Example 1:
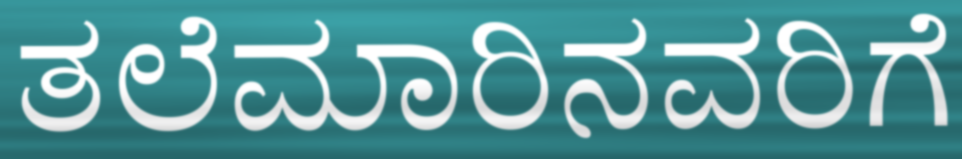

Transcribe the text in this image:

ತಲೆಮಾರಿನವರಿಗೆ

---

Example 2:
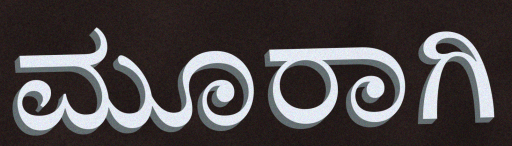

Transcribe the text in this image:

ಮೂರಾಗಿ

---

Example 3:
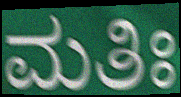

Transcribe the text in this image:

ಮತಿಃ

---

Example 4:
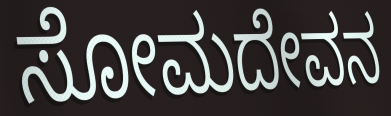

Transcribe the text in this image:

ಸೋಮದೇವನ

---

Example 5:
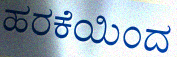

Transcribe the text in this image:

ಹರಕೆಯಿಂದ